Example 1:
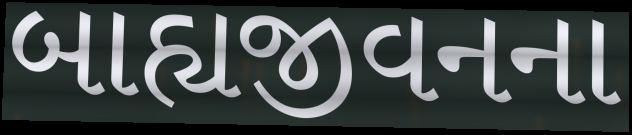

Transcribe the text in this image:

બાહ્યજીવનના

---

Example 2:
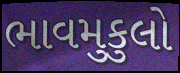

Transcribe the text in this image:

ભાવમુકુલો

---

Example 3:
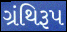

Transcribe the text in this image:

ગ્રંથિરૂપ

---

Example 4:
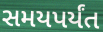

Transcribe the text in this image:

સમયપર્યંત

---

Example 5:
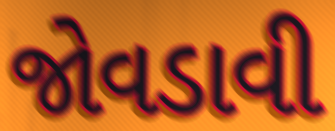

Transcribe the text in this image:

જોવડાવી